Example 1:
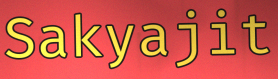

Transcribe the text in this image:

Sakyajit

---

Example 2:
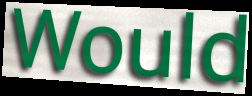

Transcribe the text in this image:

Would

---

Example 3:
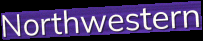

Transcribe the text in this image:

Northwestern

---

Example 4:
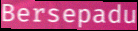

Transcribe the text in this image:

Bersepadu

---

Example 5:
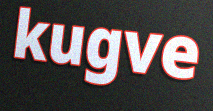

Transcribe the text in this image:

kugve